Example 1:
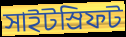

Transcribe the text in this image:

সাইটস্রিফট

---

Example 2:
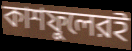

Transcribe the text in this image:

কাশফুলেরই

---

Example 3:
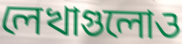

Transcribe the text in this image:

লেখাগুলোও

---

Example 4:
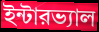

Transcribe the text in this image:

ইন্টারভ্যাল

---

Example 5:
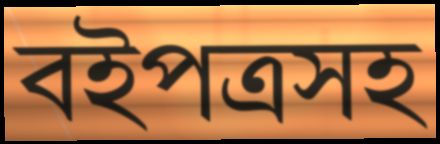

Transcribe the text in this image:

বইপত্রসহ